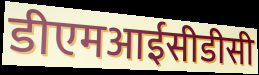
डीएमआईसीडीसी